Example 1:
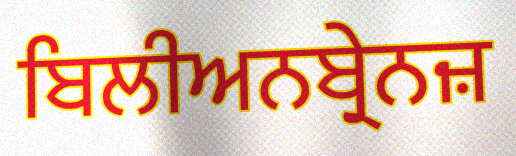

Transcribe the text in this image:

ਬਿਲੀਅਨਬ੍ਰੇਨਜ਼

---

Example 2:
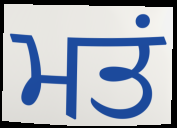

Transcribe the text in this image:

ਮਤਂ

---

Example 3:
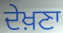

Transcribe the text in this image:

ਦੇਖ਼ਣਾ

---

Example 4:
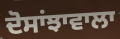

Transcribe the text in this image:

ਦੋਸਾਂਝਾਵਾਲਾ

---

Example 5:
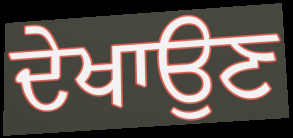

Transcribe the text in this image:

ਦੇਖਾਉਣ